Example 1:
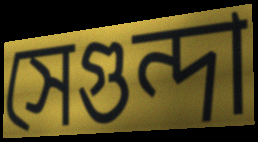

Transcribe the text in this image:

সেগুন্দা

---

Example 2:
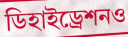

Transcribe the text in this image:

ডিহাইড্রেশনও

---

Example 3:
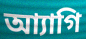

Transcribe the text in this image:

আ্যাগি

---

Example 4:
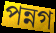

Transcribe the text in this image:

পন্নগ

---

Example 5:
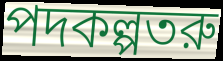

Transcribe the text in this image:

পদকল্পতরু